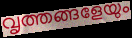
വൃത്തങ്ങളേയും